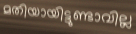
മതിയായിട്ടുണ്ടാവില്ല